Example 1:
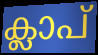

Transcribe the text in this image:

ക്ലാപ്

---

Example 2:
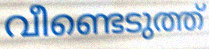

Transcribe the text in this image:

വീണ്ടെടുത്ത്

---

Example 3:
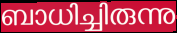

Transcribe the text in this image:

ബാധിച്ചിരുന്നു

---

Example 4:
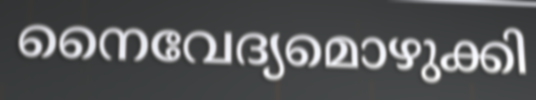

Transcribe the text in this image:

നൈവേദ്യമൊഴുക്കി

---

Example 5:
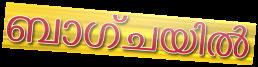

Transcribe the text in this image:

ബാഗ്ചയിൽ